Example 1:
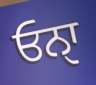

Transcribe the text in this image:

ਓਨਾੑ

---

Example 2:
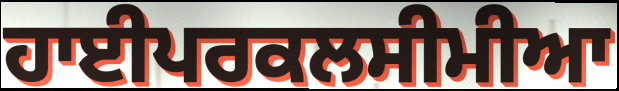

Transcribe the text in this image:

ਹਾਈਪਰਕਲਸੀਮੀਆ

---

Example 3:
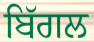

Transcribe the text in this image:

ਬਿੱਗਲ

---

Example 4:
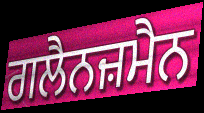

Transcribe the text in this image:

ਗਲੈਨਜ਼ਮੈਨ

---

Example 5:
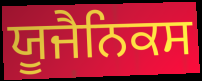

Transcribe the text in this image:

ਯੂਜੈਨਿਕਸ